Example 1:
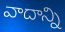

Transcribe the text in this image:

వాదాన్ని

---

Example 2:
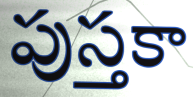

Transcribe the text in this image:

పుస్తకా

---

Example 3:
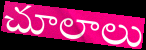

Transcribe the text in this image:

చూలాలు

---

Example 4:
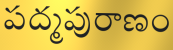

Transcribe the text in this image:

పద్మపురాణం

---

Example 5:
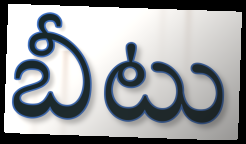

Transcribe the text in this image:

బీటు